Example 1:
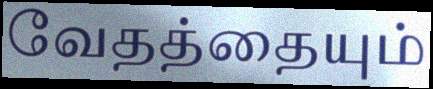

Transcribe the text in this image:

வேதத்தையும்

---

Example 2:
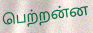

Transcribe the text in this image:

பெற்றன்ன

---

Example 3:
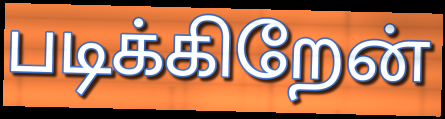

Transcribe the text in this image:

படிக்கிறேன்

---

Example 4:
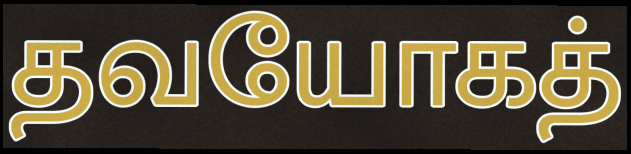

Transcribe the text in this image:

தவயோகத்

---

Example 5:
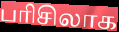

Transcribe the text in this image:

பரிசிலாக